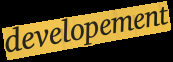
developement